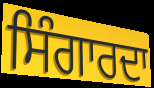
ਸਿੰਗਾਰਦਾ